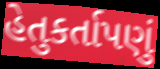
હેતુકર્તાપણું